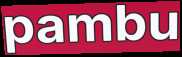
pambu